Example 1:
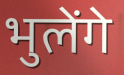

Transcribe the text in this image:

भुलेंगे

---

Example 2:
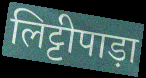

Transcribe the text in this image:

लिट्टीपाड़ा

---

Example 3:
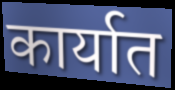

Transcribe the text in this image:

कार्यात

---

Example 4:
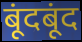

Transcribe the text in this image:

बूंदबूंद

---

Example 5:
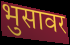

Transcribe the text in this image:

भुसावर